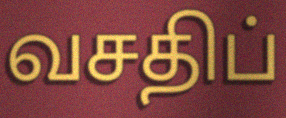
வசதிப்